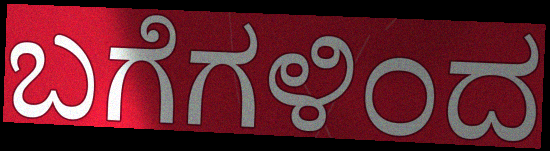
ಬಗೆಗಳಿಂದ